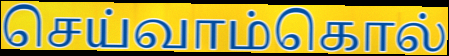
செய்வாம்கொல்